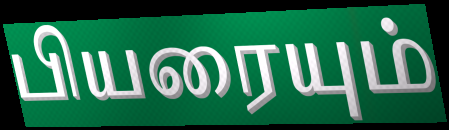
பியரையும்